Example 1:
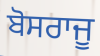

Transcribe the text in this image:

ਬੋਸਰਾਜੂ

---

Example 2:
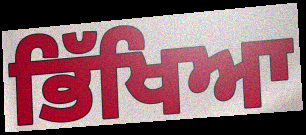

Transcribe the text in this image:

ਭਿੱਖਿਆ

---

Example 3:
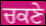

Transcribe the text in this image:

ਚਕਣੇ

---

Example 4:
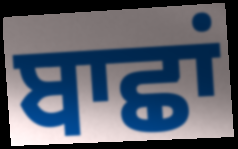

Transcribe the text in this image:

ਬਾਛਾਂ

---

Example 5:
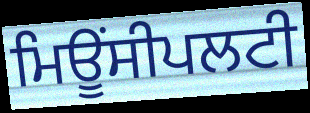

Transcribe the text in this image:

ਮਿਊਂਸੀਪਲਟੀ